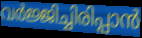
വർജ്ജിച്ചിരിപ്പാൻ